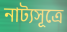
নাট্যসূত্রে